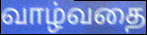
வாழ்வதை